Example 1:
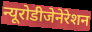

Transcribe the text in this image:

न्यूरोडीजेनेरेशन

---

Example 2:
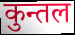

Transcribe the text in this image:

कुन्तल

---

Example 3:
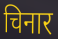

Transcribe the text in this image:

चिनार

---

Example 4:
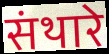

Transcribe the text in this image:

संथारे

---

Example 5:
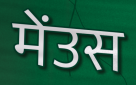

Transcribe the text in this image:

मेंउस